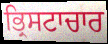
ਭ੍ਰਿਸਟਾਚਾਰ